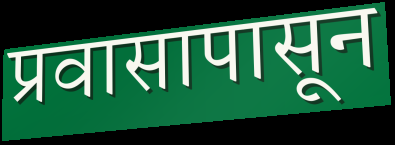
प्रवासापासून